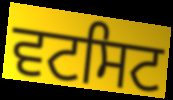
ਵਟਸਿਟ